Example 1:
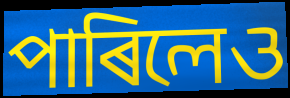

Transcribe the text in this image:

পাৰিলেও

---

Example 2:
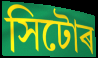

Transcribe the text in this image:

সিটোৰ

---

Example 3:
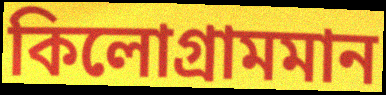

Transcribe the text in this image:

কিলোগ্ৰামমান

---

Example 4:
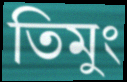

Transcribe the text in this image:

তিমুং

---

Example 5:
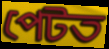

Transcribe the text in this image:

পেটত